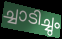
ച്ചാടിച്ചും